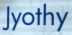
Jyothy